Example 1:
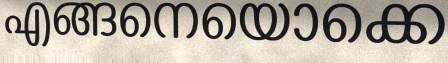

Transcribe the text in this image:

എങ്ങനെയൊക്കെ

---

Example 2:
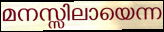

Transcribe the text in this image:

മനസ്സിലായെന്ന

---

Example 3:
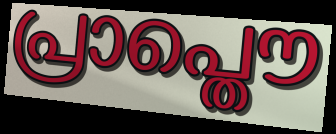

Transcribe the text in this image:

പ്രാപ്തൌ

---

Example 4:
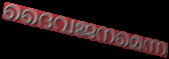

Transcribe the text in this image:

ദൈവജനമെന്ന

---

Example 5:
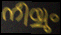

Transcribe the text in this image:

നീയ്യും